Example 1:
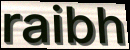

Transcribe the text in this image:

raibh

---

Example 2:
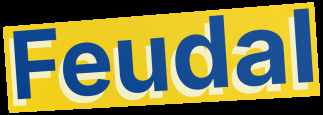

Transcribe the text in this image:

Feudal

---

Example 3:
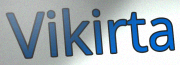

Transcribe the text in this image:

Vikirta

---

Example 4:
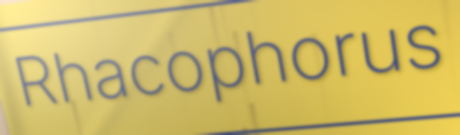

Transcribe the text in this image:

Rhacophorus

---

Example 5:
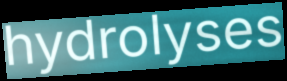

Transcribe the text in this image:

hydrolyses